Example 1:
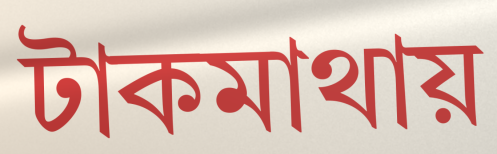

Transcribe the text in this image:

টাকমাথায়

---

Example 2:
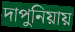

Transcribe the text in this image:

দাপুনিয়ায়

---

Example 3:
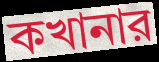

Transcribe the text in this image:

কখানার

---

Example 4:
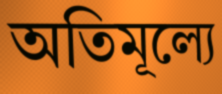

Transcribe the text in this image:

অতিমূল্যে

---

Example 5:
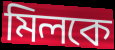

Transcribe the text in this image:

মিলকে